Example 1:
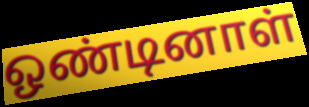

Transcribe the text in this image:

ஒண்டினாள்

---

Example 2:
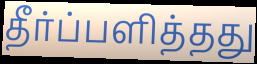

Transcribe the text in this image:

தீர்ப்பளித்தது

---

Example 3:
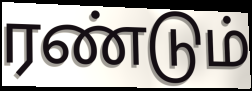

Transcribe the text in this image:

ரண்டும்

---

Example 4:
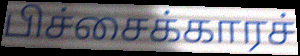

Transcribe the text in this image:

பிச்சைக்காரச்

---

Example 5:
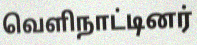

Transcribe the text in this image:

வெளிநாட்டினர்